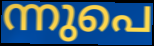
ന്നുപെ